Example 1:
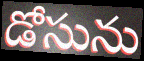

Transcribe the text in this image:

డోసును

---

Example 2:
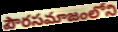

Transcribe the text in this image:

పౌరసమాజంలోని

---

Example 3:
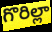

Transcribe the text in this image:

గొరిల్లా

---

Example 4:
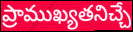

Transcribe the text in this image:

ప్రాముఖ్యతనిచ్చే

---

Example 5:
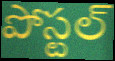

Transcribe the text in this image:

పోస్టల్